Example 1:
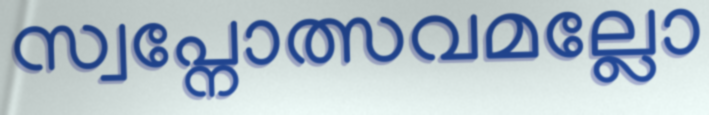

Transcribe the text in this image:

സ്വപ്നോത്സവമല്ലോ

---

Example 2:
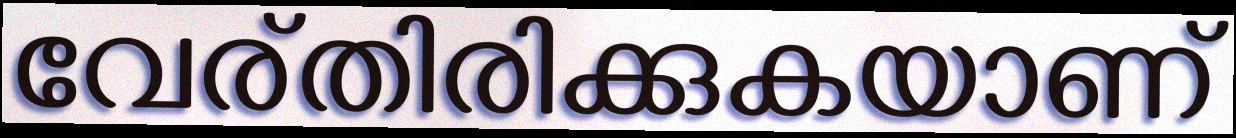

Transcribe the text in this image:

വേര്തിരിക്കുകയാണ്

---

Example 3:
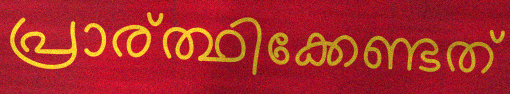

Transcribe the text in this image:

പ്രാര്ത്ഥിക്കേണ്ടത്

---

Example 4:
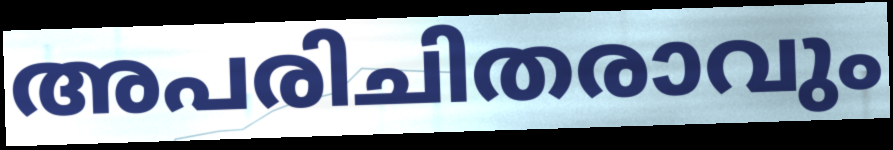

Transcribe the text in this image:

അപരിചിതരാവും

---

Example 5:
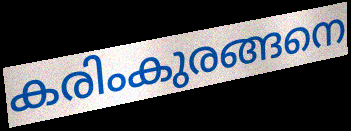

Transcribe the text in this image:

കരിംകുരങ്ങനെ